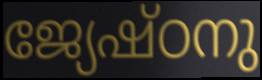
ജ്യേഷ്ഠനു